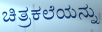
ಚಿತ್ರಕಲೆಯನ್ನು